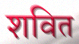
शवित